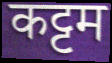
कट्टम